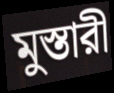
মুস্তারী